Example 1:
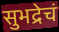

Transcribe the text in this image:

सुभद्रेचं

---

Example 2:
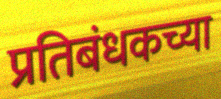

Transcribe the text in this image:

प्रतिबंधकच्या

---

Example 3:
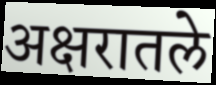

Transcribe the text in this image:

अक्षरातले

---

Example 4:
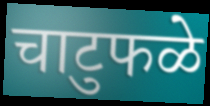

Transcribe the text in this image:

चाटुफळे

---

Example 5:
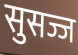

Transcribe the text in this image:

सुसज्ज